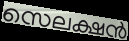
സെലക്ഷൻ